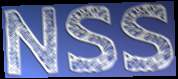
NSS